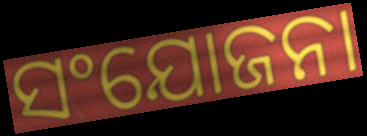
ସଂଯୋଜନା